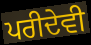
ਪਰੀਦੇਵੀ